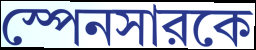
স্পেনসারকে